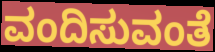
ವಂದಿಸುವಂತೆ